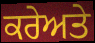
ਕਰੇਅਤੇ